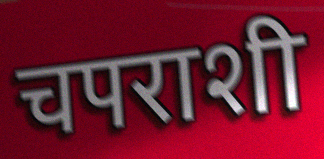
चपराशी